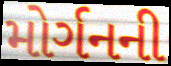
મોર્ગનની